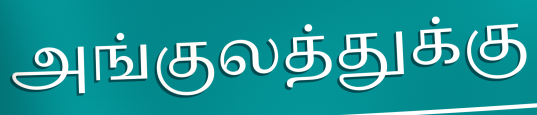
அங்குலத்துக்கு